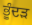
ਭੂੰਦੜ